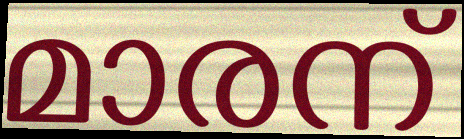
മാരന്